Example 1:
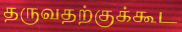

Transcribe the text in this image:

தருவதற்குக்கூட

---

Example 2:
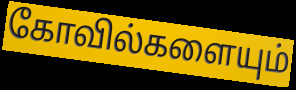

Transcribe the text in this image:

கோவில்களையும்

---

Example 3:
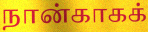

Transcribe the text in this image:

நான்காகக்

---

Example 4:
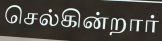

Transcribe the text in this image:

செல்கின்றார்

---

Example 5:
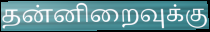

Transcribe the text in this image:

தன்னிறைவுக்கு